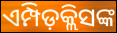
ଏମ୍ପିଡ଼କ୍ଲିସଙ୍କ